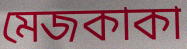
মেজকাকা